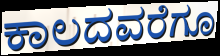
ಕಾಲದವರೆಗೂ